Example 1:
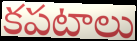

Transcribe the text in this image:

కపటాలు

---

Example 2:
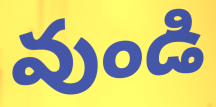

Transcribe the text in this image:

వుండి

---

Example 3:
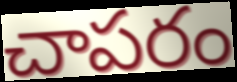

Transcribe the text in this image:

చాపరం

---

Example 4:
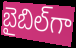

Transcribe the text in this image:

బైబిల్‌గా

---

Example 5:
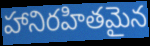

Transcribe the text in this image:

హానిరహితమైన